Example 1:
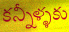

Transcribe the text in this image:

కన్నీళ్ళకు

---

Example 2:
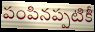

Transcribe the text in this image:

పంపినప్పటికీ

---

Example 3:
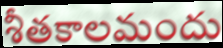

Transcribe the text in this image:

శీతకాలమందు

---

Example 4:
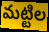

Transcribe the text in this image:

మట్టిల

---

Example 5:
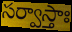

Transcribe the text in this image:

సర్వాస్తాః